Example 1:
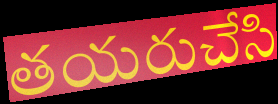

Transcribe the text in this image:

తయరుచేసి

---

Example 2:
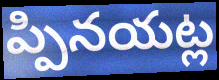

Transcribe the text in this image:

ప్పినయట్ల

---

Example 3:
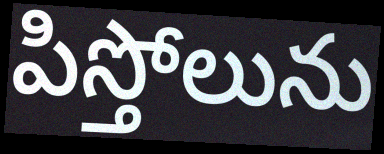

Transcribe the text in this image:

పిస్తోలును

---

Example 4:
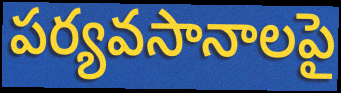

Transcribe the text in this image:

పర్యవసానాలపై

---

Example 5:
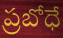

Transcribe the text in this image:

ప్రబోధే